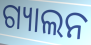
ଗ୍ୟାଲନ